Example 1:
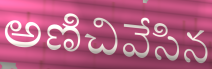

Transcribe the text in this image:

అణిచివేసిన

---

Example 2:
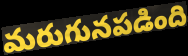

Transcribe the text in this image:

మరుగునపడింది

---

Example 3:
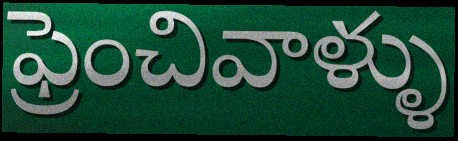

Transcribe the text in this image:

ఫ్రెంచివాళ్ళు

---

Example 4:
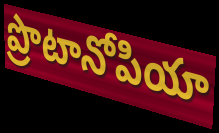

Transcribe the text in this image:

ప్రొటానోపియా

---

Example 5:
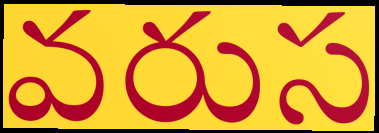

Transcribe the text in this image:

వరుస